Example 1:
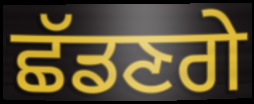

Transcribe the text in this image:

ਛੱਡਣਗੇ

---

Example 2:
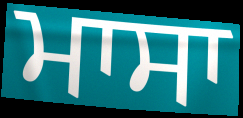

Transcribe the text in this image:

ਮਾਸਾ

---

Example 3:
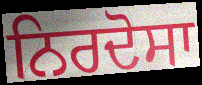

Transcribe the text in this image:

ਨਿਰਦੋਸਾ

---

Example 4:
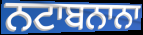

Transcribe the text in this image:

ਨਟਾਬਨਾਨਾ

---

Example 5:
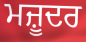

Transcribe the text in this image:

ਮਜ਼ੂਦਰ